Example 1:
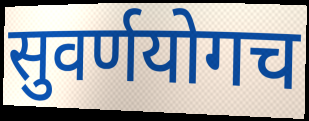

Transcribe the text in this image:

सुवर्णयोगच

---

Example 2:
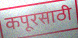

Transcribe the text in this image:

कपूरसाठी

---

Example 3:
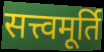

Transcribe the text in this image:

सत्त्वमूर्ति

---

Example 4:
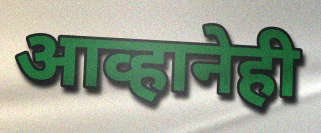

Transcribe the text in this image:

आव्हानेही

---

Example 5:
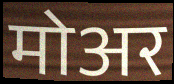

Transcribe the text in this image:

मोअर